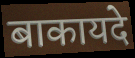
बाकायदे